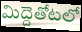
మిద్దెతోటలో